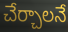
చేర్చాలనే